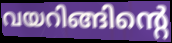
വയറിങ്ങിന്റെ